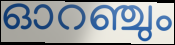
ഓറഞ്ചും